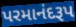
પરમાનંદરૂપ